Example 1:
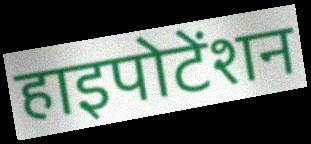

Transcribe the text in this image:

हाइपोटेंशन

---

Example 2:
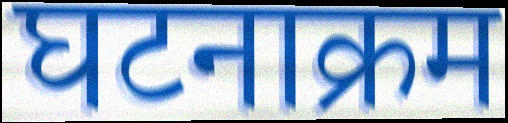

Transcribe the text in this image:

घटनाक्रम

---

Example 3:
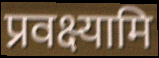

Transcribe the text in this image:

प्रवक्ष्यामि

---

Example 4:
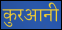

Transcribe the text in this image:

कुरआनी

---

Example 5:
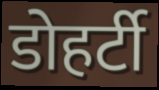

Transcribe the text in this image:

डोहर्टी